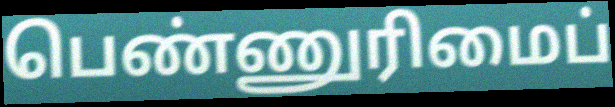
பெண்ணுரிமைப்